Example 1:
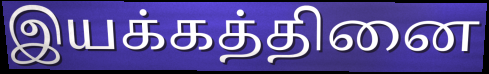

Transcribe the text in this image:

இயக்கத்தினை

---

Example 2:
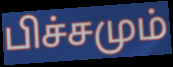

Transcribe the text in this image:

பிச்சமும்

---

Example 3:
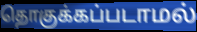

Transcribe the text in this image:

தொகுக்கப்படாமல்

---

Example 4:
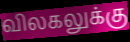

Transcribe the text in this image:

விலகலுக்கு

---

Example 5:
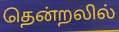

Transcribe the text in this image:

தென்றலில்